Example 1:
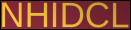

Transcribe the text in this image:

NHIDCL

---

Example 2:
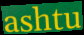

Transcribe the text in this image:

ashtu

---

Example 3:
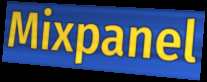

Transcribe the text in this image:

Mixpanel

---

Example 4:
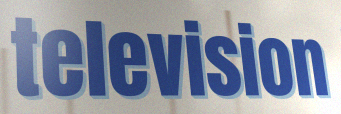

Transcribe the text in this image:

television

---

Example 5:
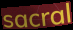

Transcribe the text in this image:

sacral